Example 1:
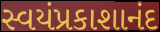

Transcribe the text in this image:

સ્વયંપ્રકાશાનંદ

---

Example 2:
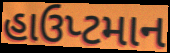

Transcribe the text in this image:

હાઉપ્ટમાન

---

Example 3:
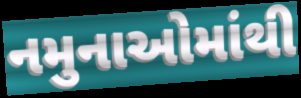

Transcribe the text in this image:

નમુનાઓમાંથી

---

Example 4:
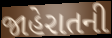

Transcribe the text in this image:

જાહેરાતની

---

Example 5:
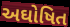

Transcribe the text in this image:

અઘોષિત